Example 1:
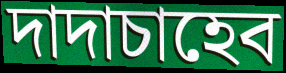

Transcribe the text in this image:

দাদাচাহেব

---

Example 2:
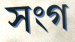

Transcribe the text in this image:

সংগ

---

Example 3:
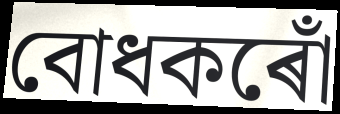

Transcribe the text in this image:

বোধকৰোঁ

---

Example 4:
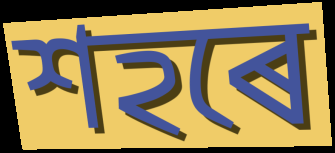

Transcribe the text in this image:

শহৰে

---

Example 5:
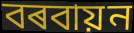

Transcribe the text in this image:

বৰবায়ন